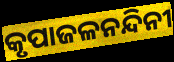
କୃପାଜଳନନ୍ଦିନୀ